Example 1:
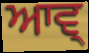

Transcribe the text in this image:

ਆਵ੍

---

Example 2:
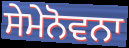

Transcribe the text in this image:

ਸੇਮੇਨੋਵਨਾ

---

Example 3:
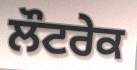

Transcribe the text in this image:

ਲੌਟਰੇਕ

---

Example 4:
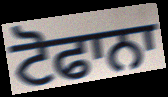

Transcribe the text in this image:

ਟੋਫਾਨਾ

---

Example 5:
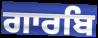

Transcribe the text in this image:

ਗਾਰਬਿ